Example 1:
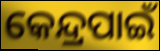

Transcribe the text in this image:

କେନ୍ଦ୍ରପାଇଁ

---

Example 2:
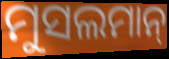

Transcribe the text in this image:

ମୁସଲମାନ୍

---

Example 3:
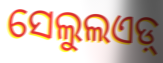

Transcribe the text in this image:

ସେଲୁଲଏଡ଼୍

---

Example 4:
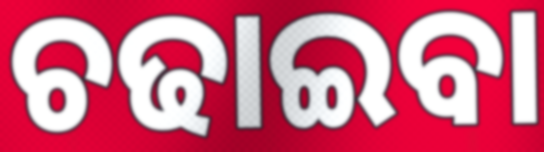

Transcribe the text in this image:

ଚଢାଇବା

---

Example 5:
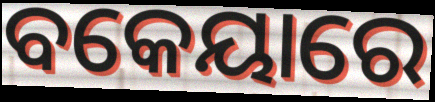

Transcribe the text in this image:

ବକେୟାରେ